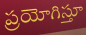
ప్రయోగిస్తూ